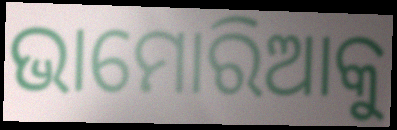
ଭାମୋରିଆକୁ